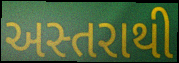
અસ્તરાથી